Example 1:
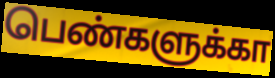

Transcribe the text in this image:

பெண்களுக்கா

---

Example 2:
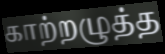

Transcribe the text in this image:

காற்றழுத்த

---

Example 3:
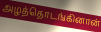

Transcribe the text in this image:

அழத்தொடங்கினான்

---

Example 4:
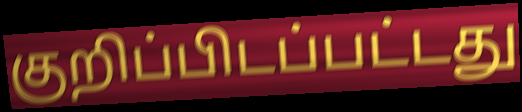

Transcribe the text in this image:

குறிப்பிடப்பட்டது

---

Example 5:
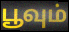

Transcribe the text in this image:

பூவும்